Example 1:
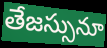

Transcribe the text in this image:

తేజస్సునూ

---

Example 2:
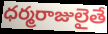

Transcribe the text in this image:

ధర్మరాజులైతే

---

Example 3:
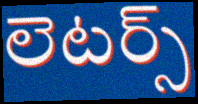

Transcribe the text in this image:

లెటర్స్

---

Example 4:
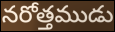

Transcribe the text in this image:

నరోత్తముడు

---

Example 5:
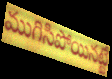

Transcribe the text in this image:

ముగిసిపోయినట్టే